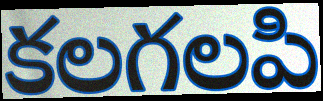
కలగలపి